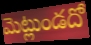
మెట్లుండదో